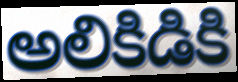
అలికిడికి